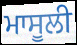
ਮਾਸੂਲੀ